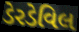
ડેરડેવિલ